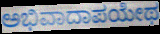
ಅಭಿವಾದಾಪಯೇಥ